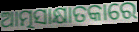
ଆତ୍ମସାକ୍ଷାତକାରେ